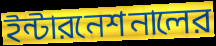
ইন্টারনেশনালের